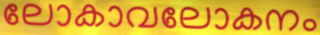
ലോകാവലോകനം